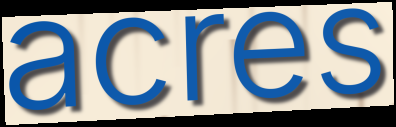
acres